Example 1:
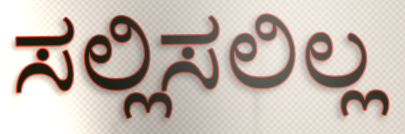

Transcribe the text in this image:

ಸಲ್ಲಿಸಲಿಲ್ಲ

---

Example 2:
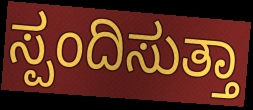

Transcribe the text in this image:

ಸ್ಪಂದಿಸುತ್ತಾ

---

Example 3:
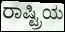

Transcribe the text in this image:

ರಾಷ್ಟ್ರಿಯ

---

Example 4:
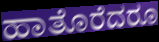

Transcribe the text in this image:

ಹಾತೊರೆದರೂ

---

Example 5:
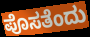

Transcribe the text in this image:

ಪೊಸತೆಂದು